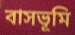
বাসভূমি